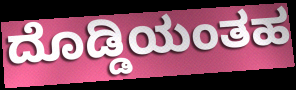
ದೊಡ್ಡಿಯಂತಹ